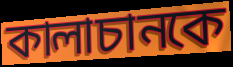
কালাচানকে